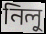
নিলু